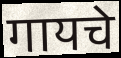
गायचे